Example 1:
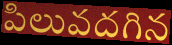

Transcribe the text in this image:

పిలువదగిన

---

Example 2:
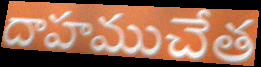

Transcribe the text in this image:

దాహముచేత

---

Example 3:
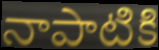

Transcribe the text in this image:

నాపాటికి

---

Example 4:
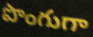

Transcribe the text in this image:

పొంగుగా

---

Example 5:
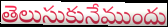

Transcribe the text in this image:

తెలుసుకునేముందు